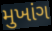
મુખાંગ